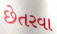
છેતરવા